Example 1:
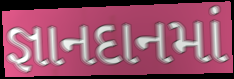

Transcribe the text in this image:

જ્ઞાનદાનમાં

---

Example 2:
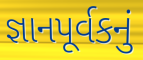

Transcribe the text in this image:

જ્ઞાનપૂર્વકનું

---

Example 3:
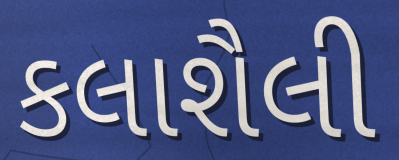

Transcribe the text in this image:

કલાશૈલી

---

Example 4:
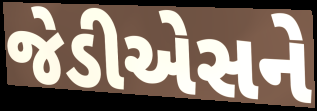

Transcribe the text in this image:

જેડીએસને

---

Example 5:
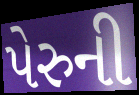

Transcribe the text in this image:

પેરુની